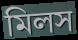
মিলস